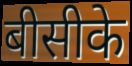
बीसीके